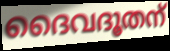
ദൈവദൂതന്